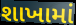
શાખામાં